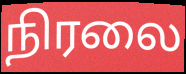
நிரலை